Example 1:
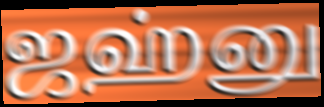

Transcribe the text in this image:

ஜஹ்னு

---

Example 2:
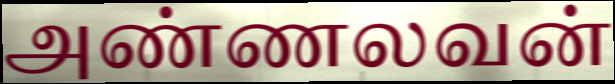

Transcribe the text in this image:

அண்ணலவன்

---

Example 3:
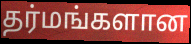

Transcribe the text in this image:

தர்மங்களான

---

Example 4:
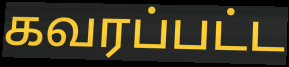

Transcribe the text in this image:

கவரப்பட்ட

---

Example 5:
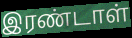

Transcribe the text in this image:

இரண்டாள்